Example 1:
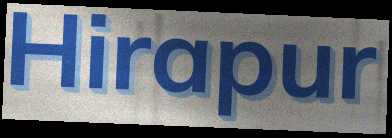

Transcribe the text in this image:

Hirapur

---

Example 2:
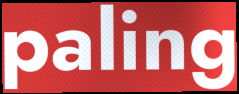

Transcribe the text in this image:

paling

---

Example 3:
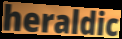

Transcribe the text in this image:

heraldic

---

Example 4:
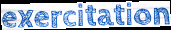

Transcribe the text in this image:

exercitation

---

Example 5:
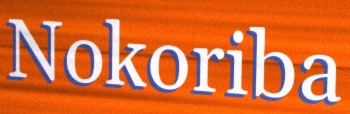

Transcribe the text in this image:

Nokoriba